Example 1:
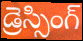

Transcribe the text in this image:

డ్రెస్సింగ్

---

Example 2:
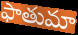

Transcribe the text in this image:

ఫాతుమా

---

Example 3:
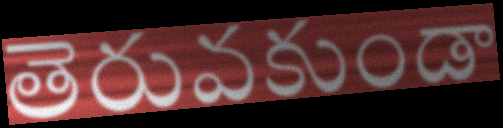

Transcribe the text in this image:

తెరువకుండా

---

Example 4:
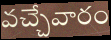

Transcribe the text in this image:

వచ్చేవారం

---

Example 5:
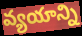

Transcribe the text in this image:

వ్యయాన్ని